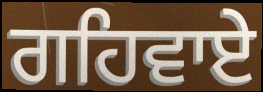
ਗਹਿਵਾਏ